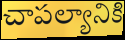
చాపల్యానికి